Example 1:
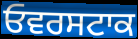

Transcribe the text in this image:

ਓਵਰਸਟਾਕ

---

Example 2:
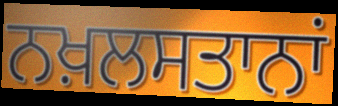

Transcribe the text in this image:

ਨਖ਼ਲਸਤਾਨਾਂ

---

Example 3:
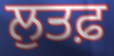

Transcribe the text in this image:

ਲੁਤਫ਼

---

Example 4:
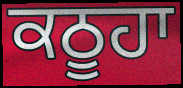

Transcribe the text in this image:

ਕਠੂਹਾ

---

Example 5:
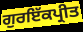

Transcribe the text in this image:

ਗੁਰਇੱਕਪ੍ਰੀਤ